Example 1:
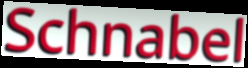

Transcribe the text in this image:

Schnabel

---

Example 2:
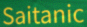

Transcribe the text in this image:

Saitanic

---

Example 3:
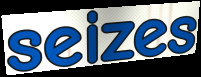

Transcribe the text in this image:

seizes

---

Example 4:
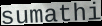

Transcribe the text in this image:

sumathi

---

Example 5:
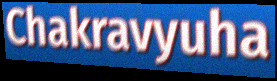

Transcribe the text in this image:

Chakravyuha